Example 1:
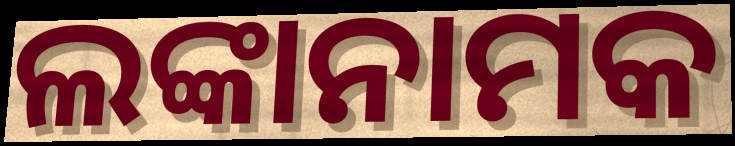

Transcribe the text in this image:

ଲଙ୍କାନାମକ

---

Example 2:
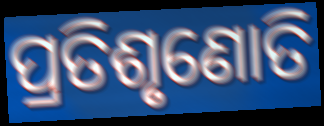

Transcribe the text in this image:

ପ୍ରତିଶୃଣୋତି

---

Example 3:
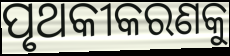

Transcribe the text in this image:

ପୃଥକୀକରଣକୁ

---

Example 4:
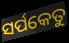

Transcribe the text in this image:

ସର୍ପକେତୁ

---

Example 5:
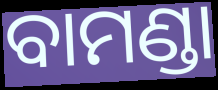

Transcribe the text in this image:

ବାମଣ୍ଡା